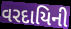
વરદાયિની